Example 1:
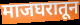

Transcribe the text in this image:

माजघरातून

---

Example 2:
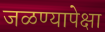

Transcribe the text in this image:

जळण्यापेक्षा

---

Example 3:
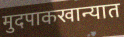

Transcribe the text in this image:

मुदपाकखान्यात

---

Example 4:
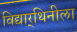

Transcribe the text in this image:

विद्यार्थिनीला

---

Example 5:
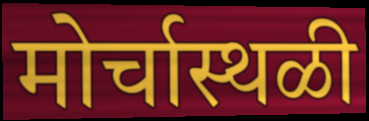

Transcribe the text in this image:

मोर्चास्थळी